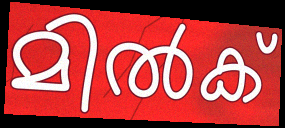
മിൽക്